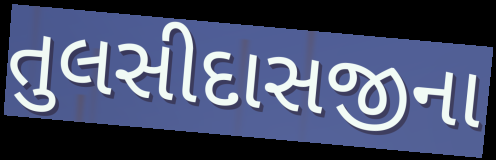
તુલસીદાસજીના